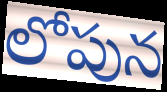
లోపున